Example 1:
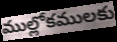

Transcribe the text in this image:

ముల్లోకములకు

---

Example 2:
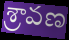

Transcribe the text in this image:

శ్రావణ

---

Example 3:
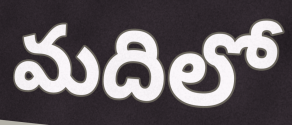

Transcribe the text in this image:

మదిలో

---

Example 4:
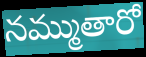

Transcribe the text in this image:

నమ్ముతారో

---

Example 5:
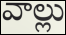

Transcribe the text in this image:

వాల్లు